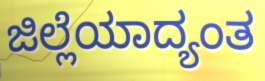
ಜಿಲ್ಲೆಯಾದ್ಯಂತ